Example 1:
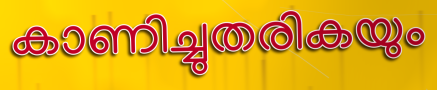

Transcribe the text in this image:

കാണിച്ചുതരികയും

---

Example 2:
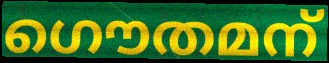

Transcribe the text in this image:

ഗൌതമന്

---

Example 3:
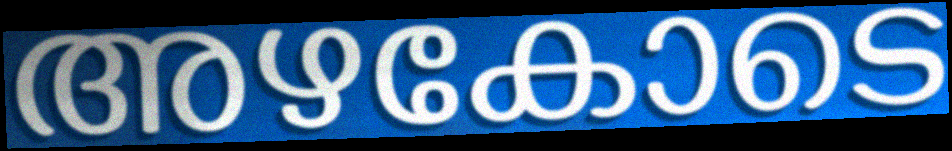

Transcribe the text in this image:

അഴകോടെ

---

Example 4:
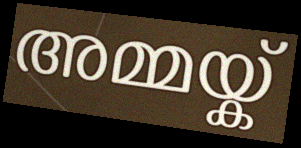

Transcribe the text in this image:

അമ്മയ്ക്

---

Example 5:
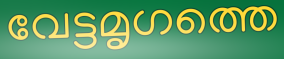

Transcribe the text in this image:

വേട്ടമൃഗത്തെ